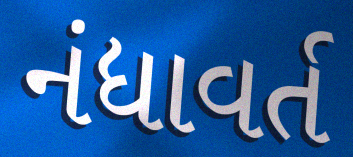
નંદ્યાવર્ત